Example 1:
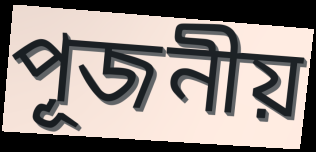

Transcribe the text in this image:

পূজনীয়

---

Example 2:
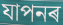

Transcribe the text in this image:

যাপনৰ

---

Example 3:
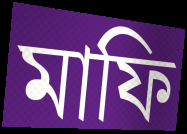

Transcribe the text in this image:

মাফি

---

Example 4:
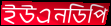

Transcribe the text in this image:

ইউএনডিপি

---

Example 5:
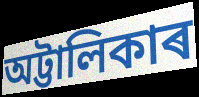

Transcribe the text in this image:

অট্টালিকাৰ